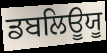
ਡਬਲਿਊਯੂ